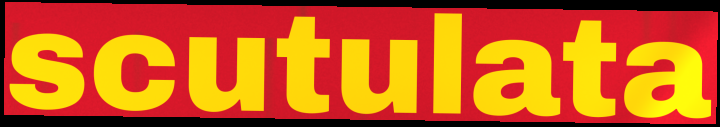
scutulata